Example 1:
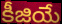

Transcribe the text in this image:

కీజియే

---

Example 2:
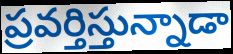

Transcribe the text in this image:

ప్రవర్తిస్తున్నాడా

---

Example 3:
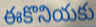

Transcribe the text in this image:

ఈకొనియకు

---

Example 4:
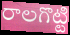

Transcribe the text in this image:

రాలగొట్టి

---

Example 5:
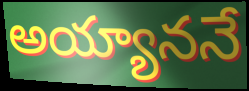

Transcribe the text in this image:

అయ్యాననే